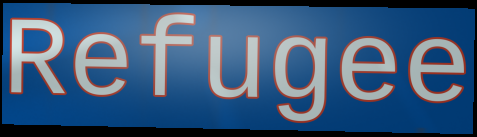
Refugee